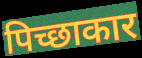
पिच्छाकार